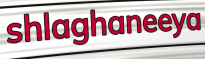
shlaghaneeya